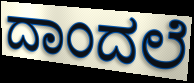
ದಾಂದಲೆ